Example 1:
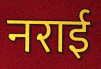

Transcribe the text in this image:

नराई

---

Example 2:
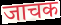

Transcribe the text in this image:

जाचक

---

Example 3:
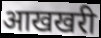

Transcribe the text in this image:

आखखरी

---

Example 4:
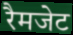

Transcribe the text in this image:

रैमजेट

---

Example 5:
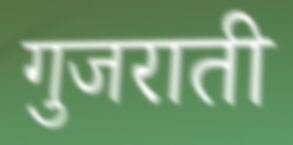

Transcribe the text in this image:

गुजराती